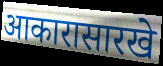
आकारासारखे